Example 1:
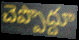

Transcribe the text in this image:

చెప్పొద్దూ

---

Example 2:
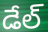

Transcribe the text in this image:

డేల్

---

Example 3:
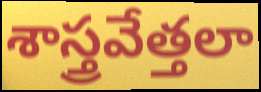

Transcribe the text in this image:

శాస్త్రవేత్తలా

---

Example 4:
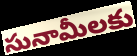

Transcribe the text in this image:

సునామీలకు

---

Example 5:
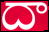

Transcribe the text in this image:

దా